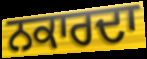
ਨਕਾਰਦਾ